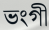
ভংগী